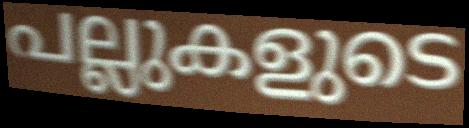
പല്ലുകളുടെ